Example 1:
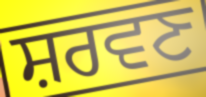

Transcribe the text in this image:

ਸ਼ਰਵਣ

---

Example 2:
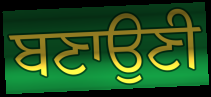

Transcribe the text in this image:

ਬਣਾਉਣੀ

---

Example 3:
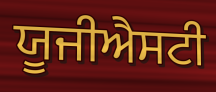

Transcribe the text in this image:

ਯੂਜੀਐਸਟੀ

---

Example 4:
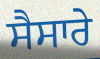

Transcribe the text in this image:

ਸੈਸਾਰੇ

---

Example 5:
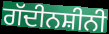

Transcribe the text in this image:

ਗੱਦੀਨਸ਼ੀਨੀ